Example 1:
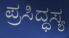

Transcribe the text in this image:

ಪ್ರಸಿದ್ಧಸ್ಯ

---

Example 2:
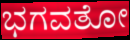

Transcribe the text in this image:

ಭಗವತೋ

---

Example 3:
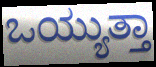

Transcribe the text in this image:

ಒಯ್ಯುತ್ತಾ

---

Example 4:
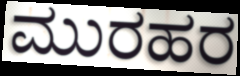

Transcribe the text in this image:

ಮುರಹರ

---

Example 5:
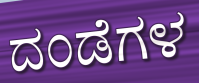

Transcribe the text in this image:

ದಂಡೆಗಳ